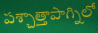
పశ్చాత్తాపాగ్నిలో